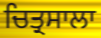
ਚਿਤ੍ਰਸਾਲਾ